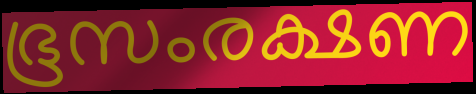
ഭൂസംരക്ഷണ